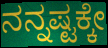
ನನ್ನಷ್ಟಕ್ಕೇ